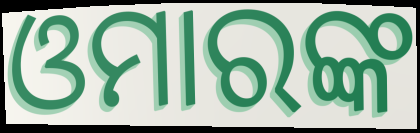
ଓମାରଙ୍କ